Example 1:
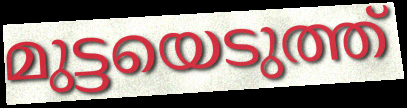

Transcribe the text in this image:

മുട്ടയെടുത്ത്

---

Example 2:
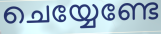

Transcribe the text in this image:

ചെയ്യേണ്ടേ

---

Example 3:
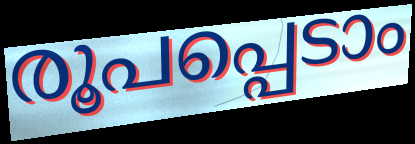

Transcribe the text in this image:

രൂപപ്പെടാം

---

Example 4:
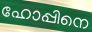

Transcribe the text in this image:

ഹോപ്പിനെ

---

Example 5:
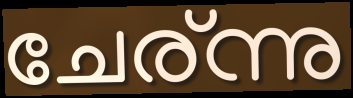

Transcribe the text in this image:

ചേര്ന്നു